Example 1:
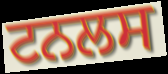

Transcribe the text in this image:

ਟਨਲਸ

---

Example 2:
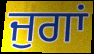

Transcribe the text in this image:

ਜੁਗਾਂ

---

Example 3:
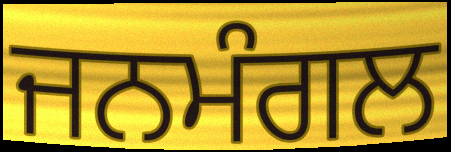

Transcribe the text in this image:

ਜਨਮੰਗਲ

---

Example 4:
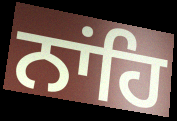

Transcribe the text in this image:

ਨਾਂਹਿ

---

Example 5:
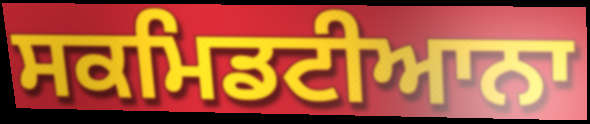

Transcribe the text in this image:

ਸਕਮਿਡਟੀਆਨਾ